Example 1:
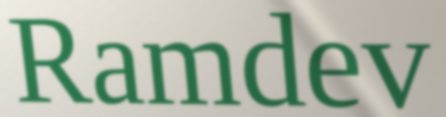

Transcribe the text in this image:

Ramdev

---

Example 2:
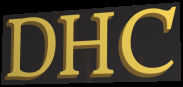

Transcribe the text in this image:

DHC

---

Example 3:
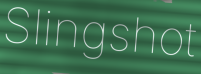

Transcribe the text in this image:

Slingshot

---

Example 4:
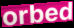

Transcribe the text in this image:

orbed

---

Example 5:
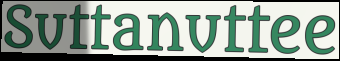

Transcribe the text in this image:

Suttanuttee